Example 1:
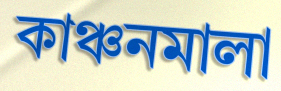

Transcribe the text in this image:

কাঞ্চনমালা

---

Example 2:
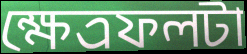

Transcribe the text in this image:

ক্ষেত্রফলটা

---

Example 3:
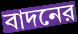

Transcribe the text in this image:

বাদনের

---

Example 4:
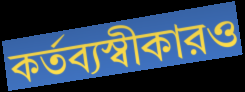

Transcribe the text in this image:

কর্তব্যস্বীকারও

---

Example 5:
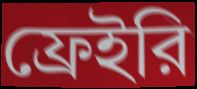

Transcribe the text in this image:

ফ্রেইরি